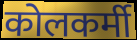
कोलकर्मी